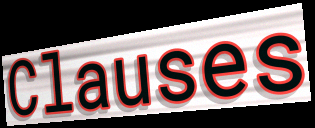
Clauses